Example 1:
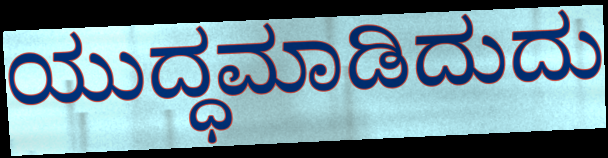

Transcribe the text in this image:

ಯುದ್ಧಮಾಡಿದುದು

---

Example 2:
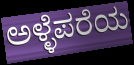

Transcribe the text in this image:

ಅಳ್ಳೆಪರೆಯ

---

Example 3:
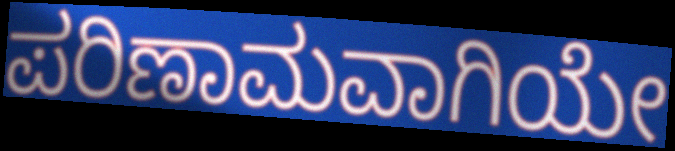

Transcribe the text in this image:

ಪರಿಣಾಮವಾಗಿಯೇ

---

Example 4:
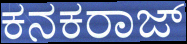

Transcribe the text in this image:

ಕನಕರಾಜ್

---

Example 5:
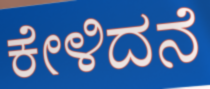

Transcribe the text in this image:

ಕೇಳಿದನೆ